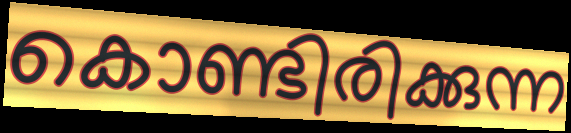
കൊണ്ടിരിക്കുന്ന